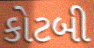
કોટબી